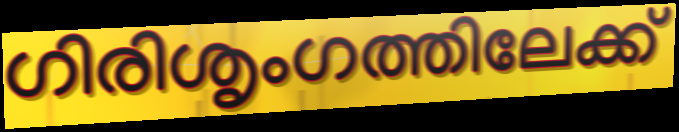
ഗിരിശൃംഗത്തിലേക്ക്